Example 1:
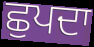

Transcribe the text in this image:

ਛੁਪਦਾ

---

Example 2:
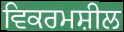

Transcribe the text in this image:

ਵਿਕਰਮਸ਼ੀਲ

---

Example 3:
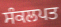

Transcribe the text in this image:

ਸੰਕਲਪਤ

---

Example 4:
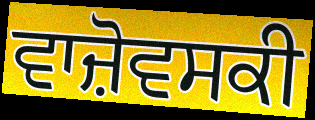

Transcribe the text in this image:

ਵਾਜ਼ੋਵਸਕੀ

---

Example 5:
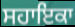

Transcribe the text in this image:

ਸਹਾਇਕਾ